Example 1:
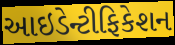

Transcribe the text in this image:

આઇડેન્ટીફિકેશન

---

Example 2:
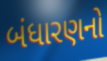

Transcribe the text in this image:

બંધારણનો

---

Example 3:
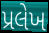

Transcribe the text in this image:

પ્રલેખ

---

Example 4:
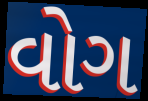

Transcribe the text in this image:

વોગ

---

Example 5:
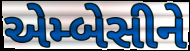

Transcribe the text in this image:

એમ્બેસીને